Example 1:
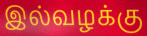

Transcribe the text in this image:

இல்வழக்கு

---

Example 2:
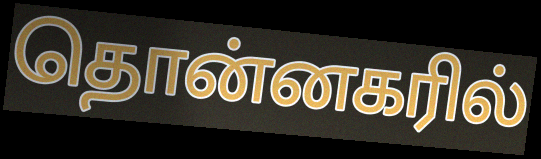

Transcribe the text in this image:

தொன்னகரில்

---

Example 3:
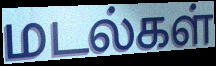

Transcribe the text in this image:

மடல்கள்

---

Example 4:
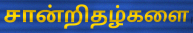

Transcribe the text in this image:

சான்றிதழ்களை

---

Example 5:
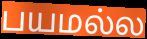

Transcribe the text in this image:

பயமல்ல